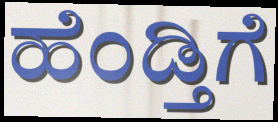
ಹೆಂಡ್ತಿಗೆ